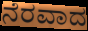
ನೆರವಾದ